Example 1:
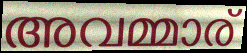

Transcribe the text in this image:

അവമ്മാര്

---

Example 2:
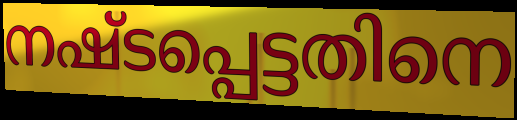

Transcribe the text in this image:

നഷ്ടപ്പെട്ടതിനെ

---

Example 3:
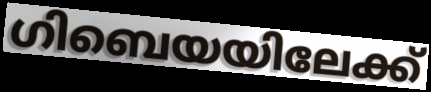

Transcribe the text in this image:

ഗിബെയയിലേക്ക്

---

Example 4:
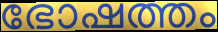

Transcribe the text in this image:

ഭോഷത്തം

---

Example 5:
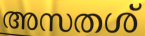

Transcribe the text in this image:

അസതശ്